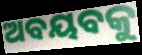
ଅବୟବକୁ